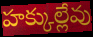
హక్కుల్లేవు